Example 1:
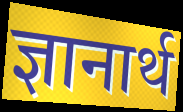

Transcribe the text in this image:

ज्ञानार्थ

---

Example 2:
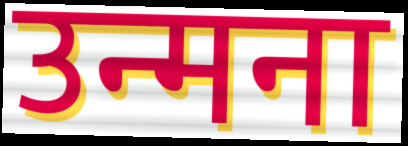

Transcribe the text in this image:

उन्मना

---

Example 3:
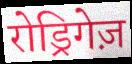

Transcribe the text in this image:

रोड्रिगेज़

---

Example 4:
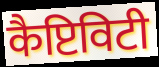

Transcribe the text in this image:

कैप्टिविटी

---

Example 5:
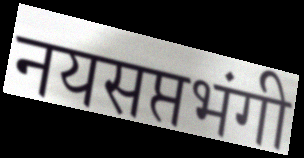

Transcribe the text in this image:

नयसप्तभंगी